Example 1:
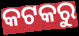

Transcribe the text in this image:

କଟକରୁ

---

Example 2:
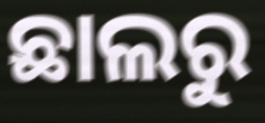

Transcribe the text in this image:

ଛାଲରୁ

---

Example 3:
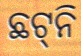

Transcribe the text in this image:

ଛଟ୍‌ନି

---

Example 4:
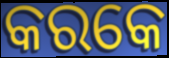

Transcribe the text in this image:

କରକେ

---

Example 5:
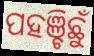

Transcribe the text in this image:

ପହଞ୍ଚିଛୁଁ